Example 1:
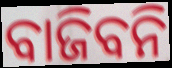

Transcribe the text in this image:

ବାଜିବନି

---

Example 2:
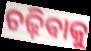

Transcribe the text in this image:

ଚଢ଼ିଵାକୁ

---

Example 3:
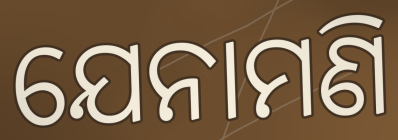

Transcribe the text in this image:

ଯେନାମଣି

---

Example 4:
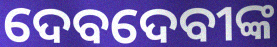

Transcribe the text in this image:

ଦେବଦେବୀଙ୍କ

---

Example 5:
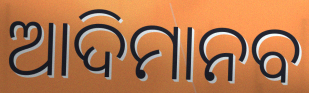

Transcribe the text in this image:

ଆଦିମାନବ